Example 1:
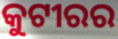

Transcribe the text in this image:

କୁଟୀରର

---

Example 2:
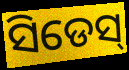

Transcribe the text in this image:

ସିଡେସ୍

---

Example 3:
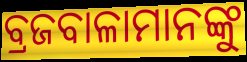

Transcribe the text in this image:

ବ୍ରଜବାଳାମାନଙ୍କୁ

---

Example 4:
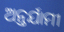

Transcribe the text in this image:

ଅନ୍ତର୍ଯାମୀ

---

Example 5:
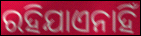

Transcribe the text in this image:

ରହିଯାଏନାହିଁ